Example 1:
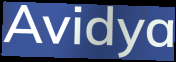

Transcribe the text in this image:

Avidya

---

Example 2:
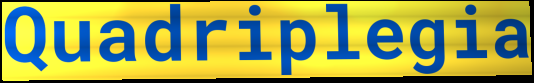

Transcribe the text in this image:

Quadriplegia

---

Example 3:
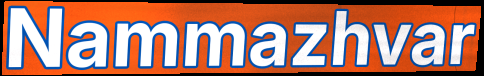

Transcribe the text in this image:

Nammazhvar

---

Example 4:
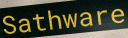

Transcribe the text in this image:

Sathware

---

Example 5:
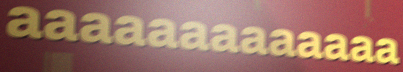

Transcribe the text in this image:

aaaaaaaaaaaaa